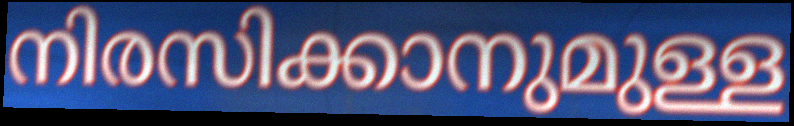
നിരസിക്കാനുമുള്ള